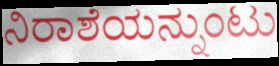
ನಿರಾಶೆಯನ್ನುಂಟು